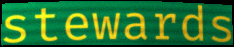
stewards